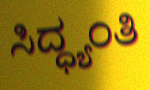
ಸಿದ್ಧ್ಯಂತಿ